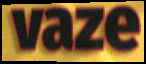
vaze